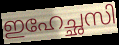
ഇഹേച്ഛസി